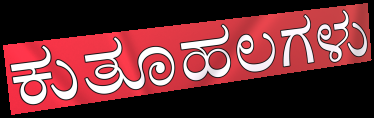
ಕುತೂಹಲಗಳು